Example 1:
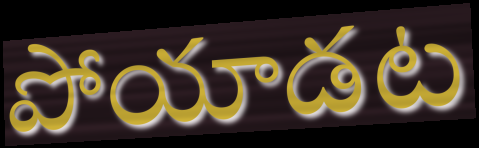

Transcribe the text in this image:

పోయాడట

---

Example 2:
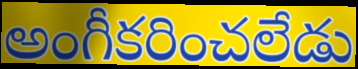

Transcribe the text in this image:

అంగీకరించలేడు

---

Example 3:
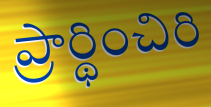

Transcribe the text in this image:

ప్రార్థించిరి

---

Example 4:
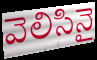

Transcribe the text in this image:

వెలిసినై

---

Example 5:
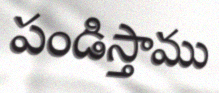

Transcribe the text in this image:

పండిస్తాము